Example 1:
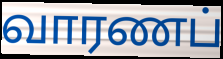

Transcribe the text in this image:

வாரணப்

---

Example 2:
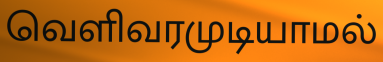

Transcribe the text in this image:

வெளிவரமுடியாமல்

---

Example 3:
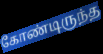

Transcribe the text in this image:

கோண்டிருந்த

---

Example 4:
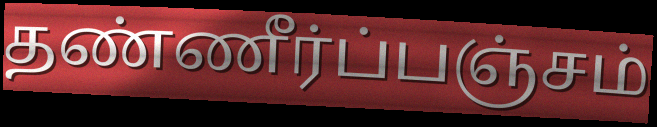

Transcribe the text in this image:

தண்ணீர்ப்பஞ்சம்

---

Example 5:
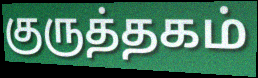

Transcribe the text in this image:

குருத்தகம்